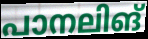
പാനലിങ്